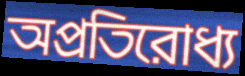
অপ্রতিরোধ্য